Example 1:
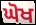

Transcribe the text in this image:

ਘੋਖ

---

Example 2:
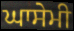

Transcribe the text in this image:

ਘਾਸੇਮੀ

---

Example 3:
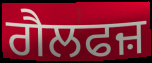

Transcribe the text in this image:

ਗੈਲਫਜ਼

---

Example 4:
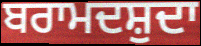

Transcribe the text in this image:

ਬਰਾਮਦਸ਼ੁਦਾ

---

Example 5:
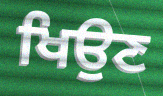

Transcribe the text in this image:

ਖਿਉਣ